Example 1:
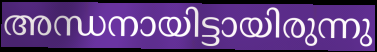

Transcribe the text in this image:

അന്ധനായിട്ടായിരുന്നു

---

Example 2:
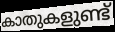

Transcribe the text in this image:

കാതുകളുണ്ട്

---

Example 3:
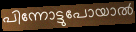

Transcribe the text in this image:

പിന്നോട്ടുപോയാൽ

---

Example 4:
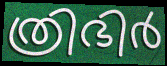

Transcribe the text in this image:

ത്രിഭിർ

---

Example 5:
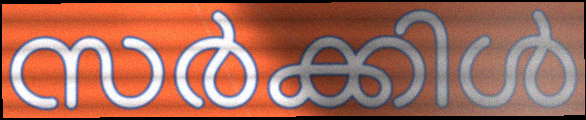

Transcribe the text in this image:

സർക്കിൾ